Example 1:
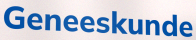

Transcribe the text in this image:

Geneeskunde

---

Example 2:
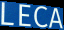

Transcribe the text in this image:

LECA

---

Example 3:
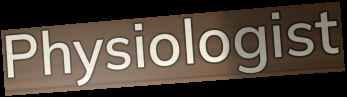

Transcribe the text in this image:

Physiologist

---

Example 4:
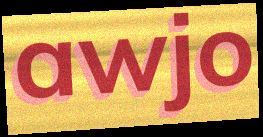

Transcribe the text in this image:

awjo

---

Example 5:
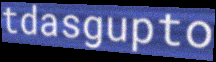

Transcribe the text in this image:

tdasgupto